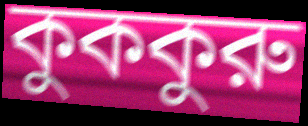
কুককুরু